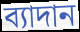
ব্যাদান